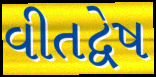
વીતદ્વેષ